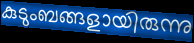
കുടുംബങ്ങളായിരുന്നു